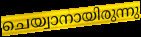
ചെയ്വാനായിരുന്നു